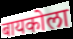
बायकोला